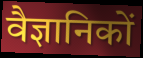
वैज्ञानिकों